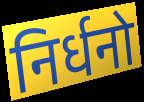
निर्धनो